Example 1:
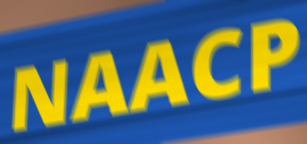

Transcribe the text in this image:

NAACP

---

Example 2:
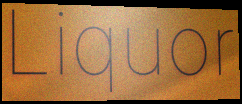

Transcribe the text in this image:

Liquor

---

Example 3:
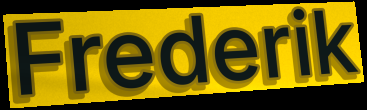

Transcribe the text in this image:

Frederik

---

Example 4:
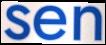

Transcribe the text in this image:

sen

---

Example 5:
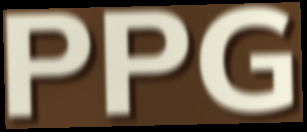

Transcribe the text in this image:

PPG